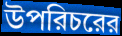
উপরিচরের